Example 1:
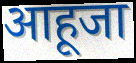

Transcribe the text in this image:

आहूजा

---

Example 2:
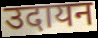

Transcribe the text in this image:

उदायन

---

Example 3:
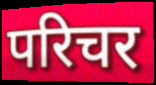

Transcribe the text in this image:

परिचर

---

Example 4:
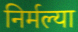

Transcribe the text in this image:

निर्मल्या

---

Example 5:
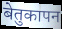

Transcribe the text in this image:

बेतुकापन